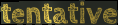
tentative